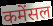
कमेंसल